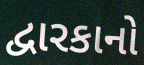
દ્વારકાનો